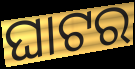
ଘାଟର